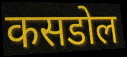
कसडोल